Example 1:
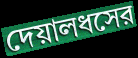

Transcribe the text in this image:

দেয়ালধসের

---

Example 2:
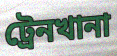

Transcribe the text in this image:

ট্রেনখানা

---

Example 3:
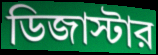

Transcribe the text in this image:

ডিজাস্টার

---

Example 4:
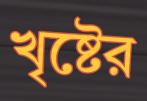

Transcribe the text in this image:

খৃষ্টের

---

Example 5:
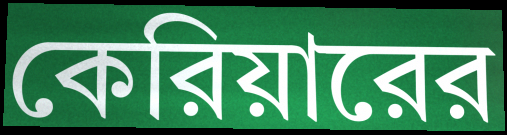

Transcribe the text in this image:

কেরিয়ারের